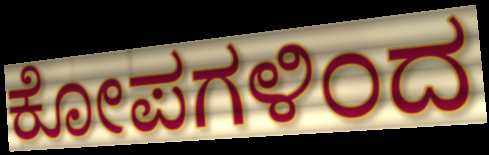
ಕೋಪಗಳಿಂದ